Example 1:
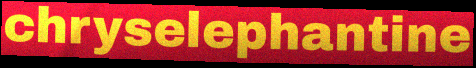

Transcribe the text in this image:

chryselephantine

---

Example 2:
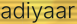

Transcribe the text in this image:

adiyaar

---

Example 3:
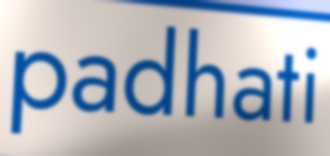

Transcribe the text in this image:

padhati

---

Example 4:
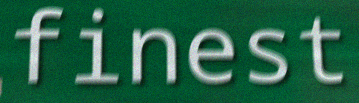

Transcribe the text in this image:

finest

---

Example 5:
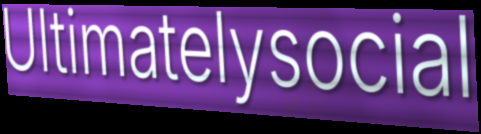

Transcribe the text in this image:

Ultimatelysocial